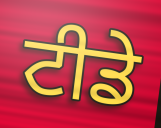
ਟੀਡੇ